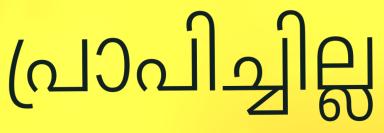
പ്രാപിച്ചില്ല